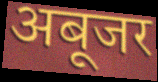
अबूजर